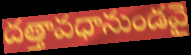
దత్తావధానుండవై